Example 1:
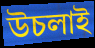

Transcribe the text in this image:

উচলাই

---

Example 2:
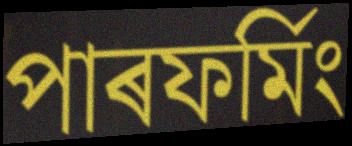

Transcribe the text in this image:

পাৰফৰ্মিং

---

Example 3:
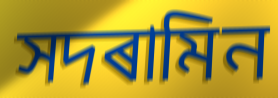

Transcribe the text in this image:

সদৰামিন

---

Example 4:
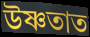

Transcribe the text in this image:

উষ্ণতাত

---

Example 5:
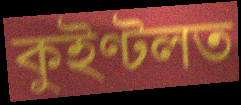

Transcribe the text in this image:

কুইণ্টলত